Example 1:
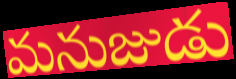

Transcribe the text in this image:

మనుజుడు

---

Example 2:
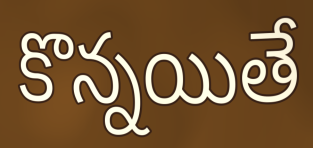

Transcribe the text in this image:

కొన్నయితే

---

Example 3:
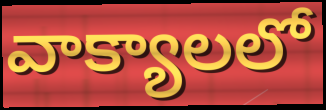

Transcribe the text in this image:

వాక్యాలలో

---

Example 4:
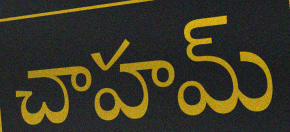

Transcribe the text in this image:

చాహమ్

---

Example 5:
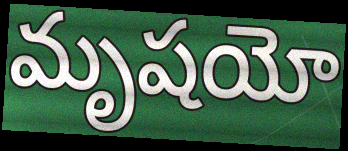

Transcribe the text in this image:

మృషయో